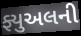
ફ્યુઅલની